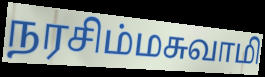
நரசிம்மசுவாமி